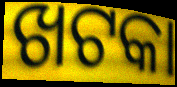
ଖଟକା